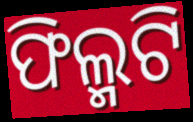
ଫିଲ୍ମଟି